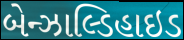
બેન્ઝાલ્ડિહાઇડ